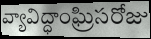
వ్యావిద్ధాంఘ్రిసరోజు